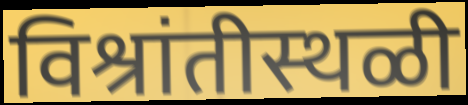
विश्रांतीस्थळी